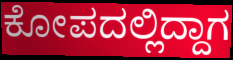
ಕೋಪದಲ್ಲಿದ್ದಾಗ